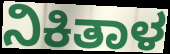
ನಿಕಿತಾಳ